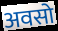
अवसो